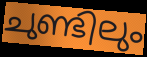
ചുണ്ടിലും